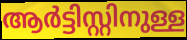
ആർട്ടിസ്റ്റിനുള്ള